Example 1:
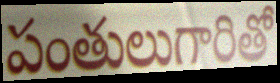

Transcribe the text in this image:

పంతులుగారితో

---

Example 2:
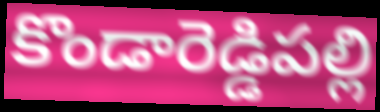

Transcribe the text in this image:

కొండారెడ్డిపల్లి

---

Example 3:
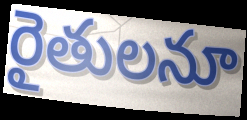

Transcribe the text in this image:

రైతులనూ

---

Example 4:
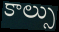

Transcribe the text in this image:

కాల్సు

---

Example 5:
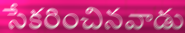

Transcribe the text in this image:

సేకరించినవాడు